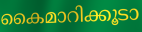
കൈമാറിക്കൂടാ